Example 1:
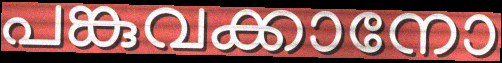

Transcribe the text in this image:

പങ്കുവക്കാനോ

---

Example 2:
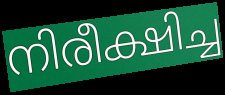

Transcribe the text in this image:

നിരീക്ഷിച്ച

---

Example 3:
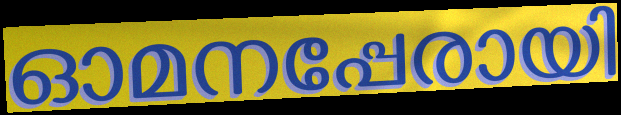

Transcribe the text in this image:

ഓമനപ്പേരായി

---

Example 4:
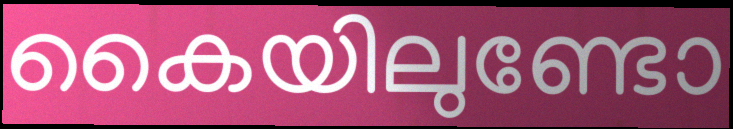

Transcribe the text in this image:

കൈയിലുണ്ടോ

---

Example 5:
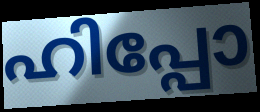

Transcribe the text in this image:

ഹിപ്പോ